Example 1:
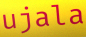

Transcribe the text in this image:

ujala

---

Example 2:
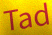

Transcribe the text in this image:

Tad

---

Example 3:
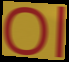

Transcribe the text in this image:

Ol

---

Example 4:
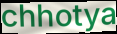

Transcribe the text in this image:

chhotya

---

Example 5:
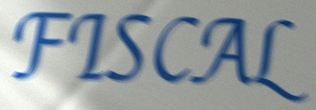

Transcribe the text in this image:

FISCAL